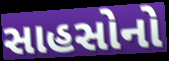
સાહસોનો